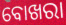
ବୋଖରା